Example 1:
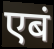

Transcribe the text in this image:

एबं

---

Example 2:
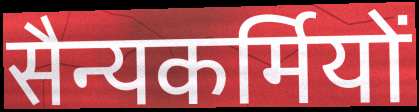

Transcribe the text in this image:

सैन्यकर्मियों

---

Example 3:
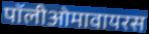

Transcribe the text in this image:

पॉलीओमावायरस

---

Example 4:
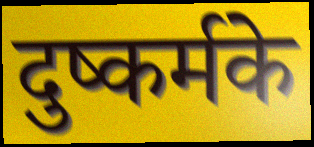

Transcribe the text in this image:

दुष्कर्मके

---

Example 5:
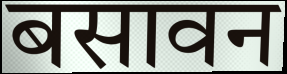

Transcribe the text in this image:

बसावन